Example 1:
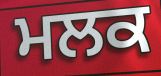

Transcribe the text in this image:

ਮਲਕ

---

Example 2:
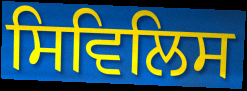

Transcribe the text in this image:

ਸਿਵਿਲਿਸ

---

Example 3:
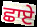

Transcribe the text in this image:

ਛਾਏ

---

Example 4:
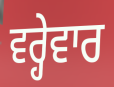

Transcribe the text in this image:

ਵਰ੍ਹੇਵਾਰ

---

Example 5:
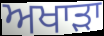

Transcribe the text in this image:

ਅਖਾੜਾ